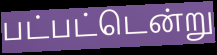
பட்பட்டென்று